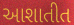
આશાતીત